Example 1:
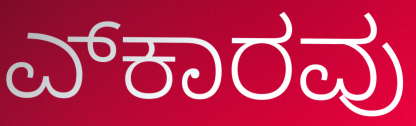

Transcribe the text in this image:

ಎ್‍ಕಾರವು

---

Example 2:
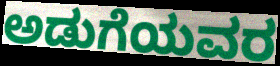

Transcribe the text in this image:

ಅಡುಗೆಯವರ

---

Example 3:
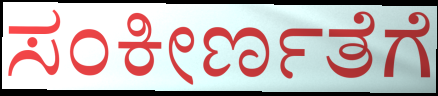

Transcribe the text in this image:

ಸಂಕೀರ್ಣತೆಗೆ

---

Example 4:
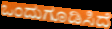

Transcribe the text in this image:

ಒಂದುಗೂಡಿಸಿದೆ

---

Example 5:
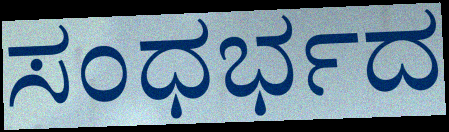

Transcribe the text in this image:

ಸಂಧರ್ಭದ